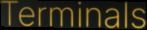
Terminals